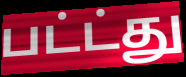
பட்ட்து